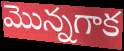
మొన్నగాక